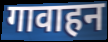
गावाहन